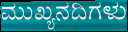
ಮುಖ್ಯನದಿಗಳು